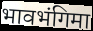
भावभंगिमा